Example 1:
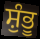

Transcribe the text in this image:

ਸ਼ੁੰਭੂ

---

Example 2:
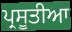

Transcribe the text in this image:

ਪ੍ਰਸੂਤੀਆ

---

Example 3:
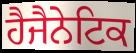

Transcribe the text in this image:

ਹੈਜੈਨੇਟਿਕ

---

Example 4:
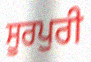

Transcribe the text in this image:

ਸੂਰਪੁਰੀ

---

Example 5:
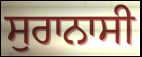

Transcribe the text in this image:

ਸੁਰਾਨਾਸੀ